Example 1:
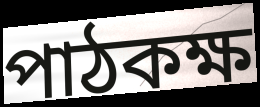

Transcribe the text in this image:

পাঠকক্ষ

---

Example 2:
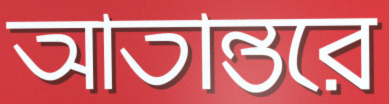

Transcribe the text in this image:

আতান্তরে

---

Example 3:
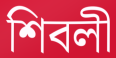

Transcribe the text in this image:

শিবলী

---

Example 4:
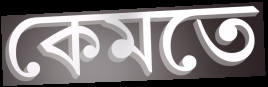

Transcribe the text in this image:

কেমতে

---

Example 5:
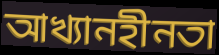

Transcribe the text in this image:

আখ্যানহীনতা